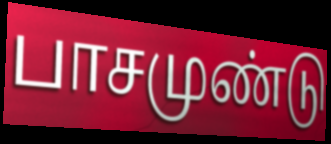
பாசமுண்டு